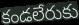
కండలేరుకు